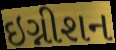
ઇગ્નીશન